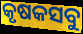
କୃଷକସବୁ